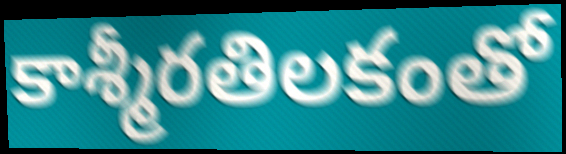
కాశ్మీరతిలకంతో